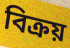
বিক্রয়